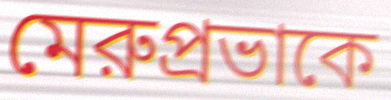
মেরুপ্রভাকে